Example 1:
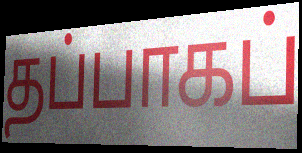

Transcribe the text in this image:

தப்பாகப்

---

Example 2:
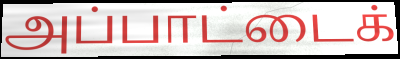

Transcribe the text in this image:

அப்பாட்டைக்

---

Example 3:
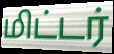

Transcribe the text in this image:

மிட்டர்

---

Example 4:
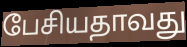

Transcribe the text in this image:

பேசியதாவது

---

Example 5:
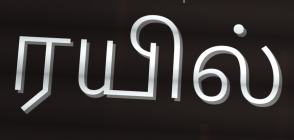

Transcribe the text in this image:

ரயில்